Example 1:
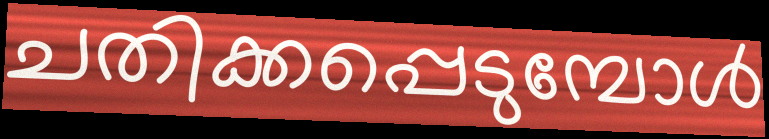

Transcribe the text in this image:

ചതിക്കപ്പെടുമ്പോൾ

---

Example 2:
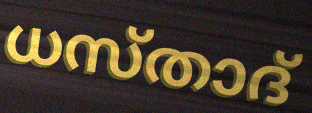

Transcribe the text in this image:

ധസ്താദ്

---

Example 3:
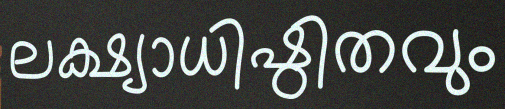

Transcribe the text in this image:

ലക്ഷ്യാധിഷ്ഠിതവും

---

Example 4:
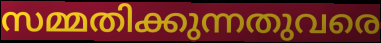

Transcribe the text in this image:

സമ്മതിക്കുന്നതുവരെ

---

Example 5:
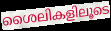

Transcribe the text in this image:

ശൈലികളിലൂടെ